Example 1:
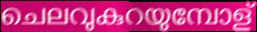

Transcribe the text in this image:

ചെലവുകുറയുമ്പോള്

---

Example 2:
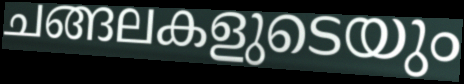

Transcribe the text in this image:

ചങ്ങലകളുടെയും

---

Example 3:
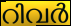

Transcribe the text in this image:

റിവർ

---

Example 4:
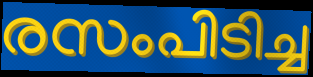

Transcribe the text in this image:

രസംപിടിച്ച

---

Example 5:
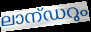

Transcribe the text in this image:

ലാന്ഡറും